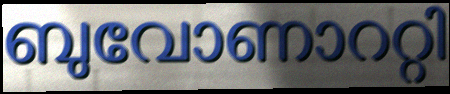
ബുവോണാററ്റി